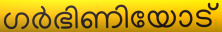
ഗർഭിണിയോട്